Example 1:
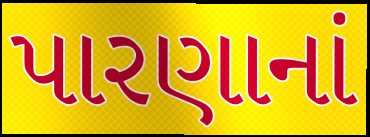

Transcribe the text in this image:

પારણાનાં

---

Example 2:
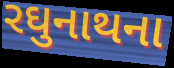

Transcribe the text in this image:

રઘુનાથના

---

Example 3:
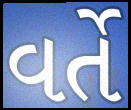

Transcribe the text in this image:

વર્તે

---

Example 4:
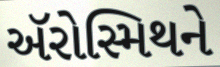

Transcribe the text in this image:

ઍરોસ્મિથને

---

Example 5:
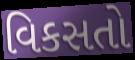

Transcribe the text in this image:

વિકસતો